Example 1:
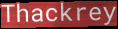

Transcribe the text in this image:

Thackrey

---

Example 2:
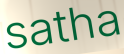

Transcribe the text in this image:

satha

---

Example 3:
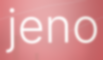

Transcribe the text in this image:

jeno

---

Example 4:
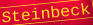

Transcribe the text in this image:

Steinbeck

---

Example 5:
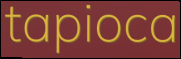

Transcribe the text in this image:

tapioca